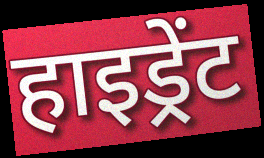
हाइड्रेंट